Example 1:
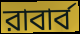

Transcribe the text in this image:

রাবার্ব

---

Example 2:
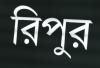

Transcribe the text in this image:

রিপুর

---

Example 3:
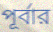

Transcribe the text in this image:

পূর্বার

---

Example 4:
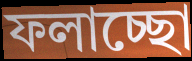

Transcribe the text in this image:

ফলাচ্ছো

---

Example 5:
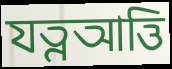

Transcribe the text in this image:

যত্নআত্তি